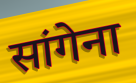
सांगेना